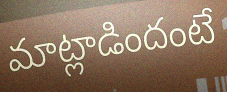
మాట్లాడిందంటే